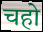
चहो